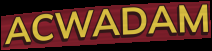
ACWADAM